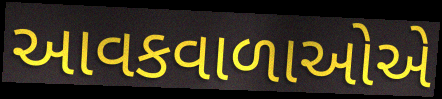
આવકવાળાઓએ